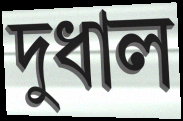
দুধাল